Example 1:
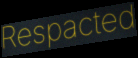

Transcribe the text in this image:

Respacted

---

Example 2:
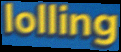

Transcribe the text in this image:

lolling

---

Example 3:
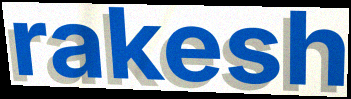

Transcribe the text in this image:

rakesh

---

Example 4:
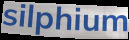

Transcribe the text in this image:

silphium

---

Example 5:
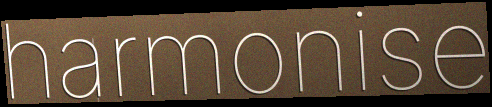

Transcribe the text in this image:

harmonise